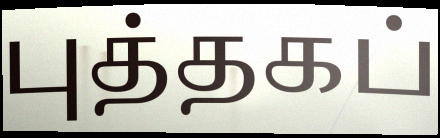
புத்தகப்